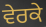
ਵੇਰਕੇ